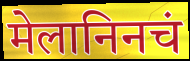
मेलानिनचं